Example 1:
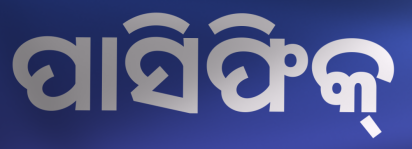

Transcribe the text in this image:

ପାସିଫିକ୍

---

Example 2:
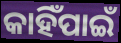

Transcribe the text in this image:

କାହିଁପାଇଁ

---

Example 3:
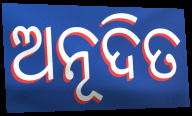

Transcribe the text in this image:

ଅନୂଦିତ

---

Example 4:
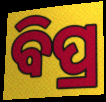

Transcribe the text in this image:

ବିପ୍ର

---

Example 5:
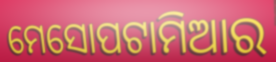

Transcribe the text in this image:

ମେସୋପଟାମିଆର